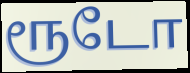
ரூடோ